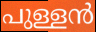
പുള്ളൻ